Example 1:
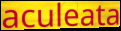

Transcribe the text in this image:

aculeata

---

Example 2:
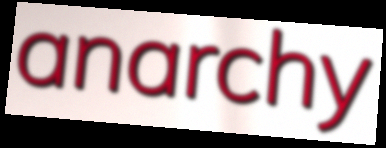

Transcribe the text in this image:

anarchy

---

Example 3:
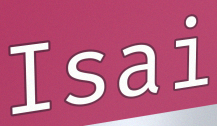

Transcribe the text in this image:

Isai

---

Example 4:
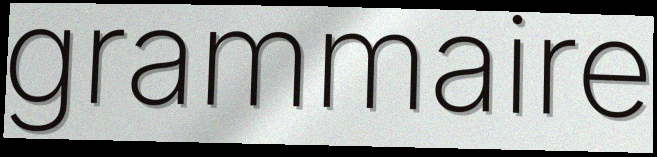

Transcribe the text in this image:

grammaire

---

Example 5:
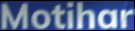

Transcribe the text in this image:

Motihar